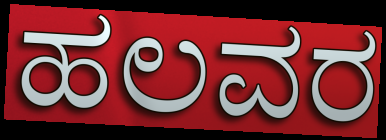
ಹಲವರ